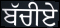
ਬੱਚੀਏ